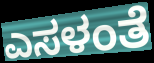
ಎಸಳಂತೆ